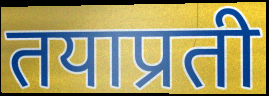
तयाप्रती